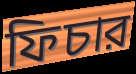
ফিচার